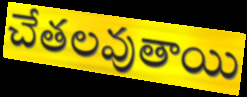
చేతలవుతాయి